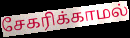
சேகரிக்காமல்